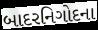
બાદરનિગોદના